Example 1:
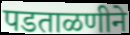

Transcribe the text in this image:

पडताळणीने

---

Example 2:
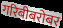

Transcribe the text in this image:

गरिबीबरोबर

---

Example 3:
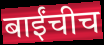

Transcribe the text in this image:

बाईंचीच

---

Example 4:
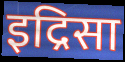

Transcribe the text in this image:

इद्रिसा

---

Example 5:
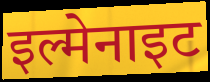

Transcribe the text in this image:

इल्मेनाइट